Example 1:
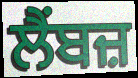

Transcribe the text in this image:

ਲੈਂਬਜ਼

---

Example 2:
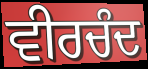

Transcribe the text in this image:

ਵੀਰਚੰਦ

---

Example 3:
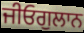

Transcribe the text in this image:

ਜੀਓਗੁਲਾਨ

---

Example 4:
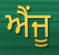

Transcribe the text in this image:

ਐਂਜੂ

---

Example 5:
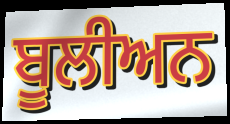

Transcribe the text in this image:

ਬੂਲੀਅਨ